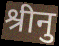
श्रीनु